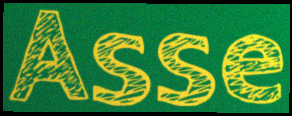
Asse